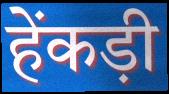
हेंकड़ी